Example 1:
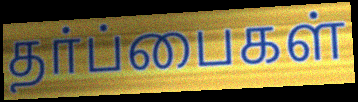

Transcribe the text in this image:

தர்ப்பைகள்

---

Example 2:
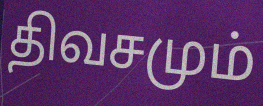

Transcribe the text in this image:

திவசமும்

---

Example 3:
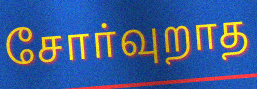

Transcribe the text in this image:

சோர்வுறாத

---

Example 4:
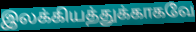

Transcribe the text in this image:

இலக்கியத்துக்காகவே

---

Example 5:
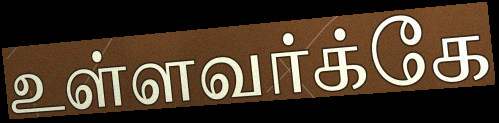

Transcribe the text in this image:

உள்ளவர்க்கே